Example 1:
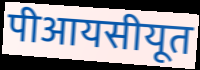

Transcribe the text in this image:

पीआयसीयूत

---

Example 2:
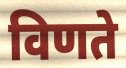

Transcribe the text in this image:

विणते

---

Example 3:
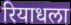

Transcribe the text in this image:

रियाधला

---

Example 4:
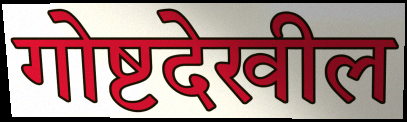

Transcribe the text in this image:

गोष्टदेखील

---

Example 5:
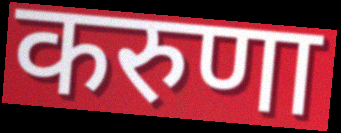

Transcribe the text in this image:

करुणा